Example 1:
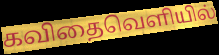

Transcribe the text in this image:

கவிதைவெளியில்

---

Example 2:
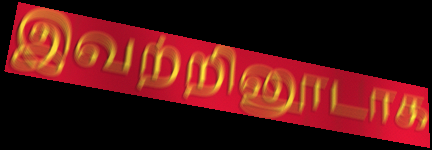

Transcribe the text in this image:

இவற்றினூடாக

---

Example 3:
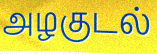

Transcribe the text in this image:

அழகுடல்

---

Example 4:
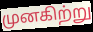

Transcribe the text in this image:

முனகிற்று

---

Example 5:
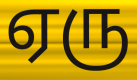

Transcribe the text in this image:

ஏரு